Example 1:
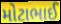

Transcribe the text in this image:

મોટાભાઈ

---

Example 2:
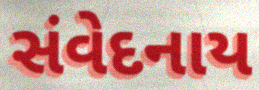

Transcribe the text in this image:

સંવેદનાય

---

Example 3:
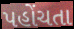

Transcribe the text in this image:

પહોંચતા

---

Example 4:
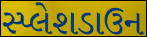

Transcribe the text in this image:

સ્પ્લેશડાઉન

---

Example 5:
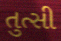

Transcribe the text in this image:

તુત્સી